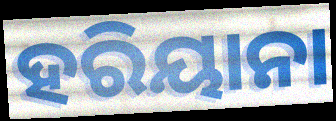
ହରିୟାନା